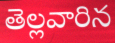
తెల్లవారిన